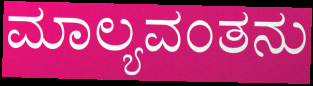
ಮಾಲ್ಯವಂತನು